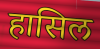
हासिल